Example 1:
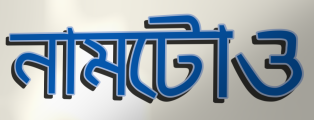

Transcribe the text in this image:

নামটোও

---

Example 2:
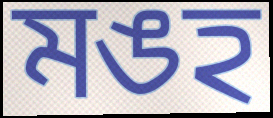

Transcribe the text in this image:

মঙহ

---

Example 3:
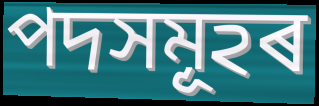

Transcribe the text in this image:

পদসমূহৰ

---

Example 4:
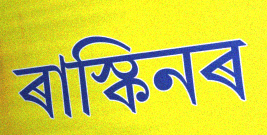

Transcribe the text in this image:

ৰাস্কিনৰ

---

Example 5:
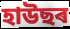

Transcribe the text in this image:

হাউছৰ